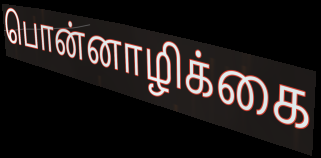
பொன்னாழிக்கை